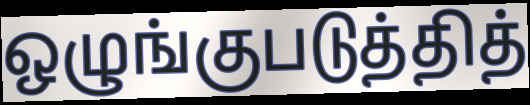
ஒழுங்குபடுத்தித்